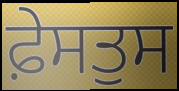
ਫ਼ੇਸਤੁਸ